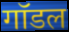
गॉडल